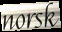
norsk